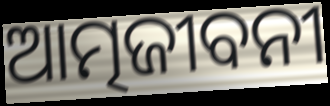
ଆତ୍ମଜୀବନୀ